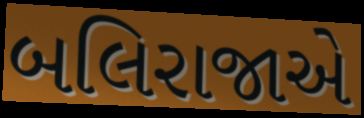
બલિરાજાએ